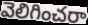
వెలిగించరా